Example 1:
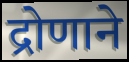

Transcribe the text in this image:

द्रोणाने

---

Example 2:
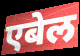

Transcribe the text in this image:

एबेल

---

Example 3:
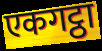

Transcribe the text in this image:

एकगट्ठा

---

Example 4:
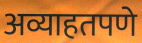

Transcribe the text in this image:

अव्याहतपणे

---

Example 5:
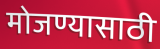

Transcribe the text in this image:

मोजण्यासाठी